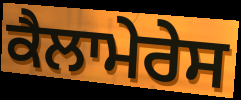
ਕੈਲਾਮੇਰੇਸ